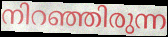
നിറഞ്ഞിരുന്ന